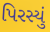
પિરસ્યું